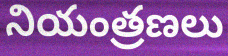
నియంత్రణలు